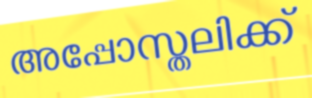
അപ്പോസ്തലിക്ക്